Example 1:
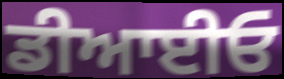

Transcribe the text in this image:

ਡੀਆਈਓ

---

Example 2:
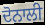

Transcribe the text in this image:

ਦੋਨਾਲੀ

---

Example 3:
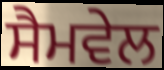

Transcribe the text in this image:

ਸੈਮਵੇਲ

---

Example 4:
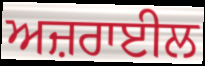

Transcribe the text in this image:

ਅਜ਼ਰਾਈਲ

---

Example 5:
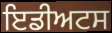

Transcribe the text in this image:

ਇਡੀਅਟਸ